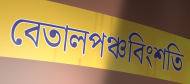
বেতালপঞ্চবিংশতি